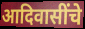
आदिवासींचे